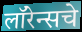
लॉरेन्सचे